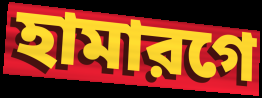
হামারগে